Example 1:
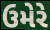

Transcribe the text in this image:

ઉમેરે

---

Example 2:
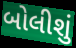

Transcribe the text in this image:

બોલીશું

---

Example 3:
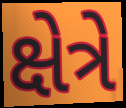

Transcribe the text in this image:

ક્ષેત્રે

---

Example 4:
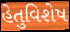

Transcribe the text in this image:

હેતુવિશેષ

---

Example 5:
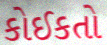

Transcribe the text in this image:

કોઈકતો